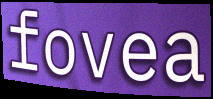
fovea